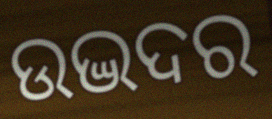
ଉଦ୍ଭଦର